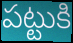
పట్టుకి